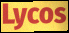
Lycos